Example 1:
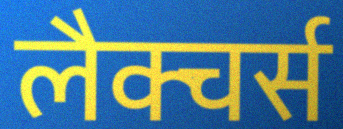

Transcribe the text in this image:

लैक्चर्स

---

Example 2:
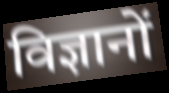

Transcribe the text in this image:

विज्ञानों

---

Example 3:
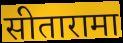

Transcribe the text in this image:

सीतारामा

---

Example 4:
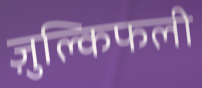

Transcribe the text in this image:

ज़ुल्किफली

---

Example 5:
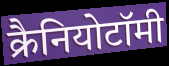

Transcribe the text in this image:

क्रैनियोटॉमी